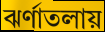
ঝর্ণাতলায়